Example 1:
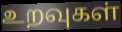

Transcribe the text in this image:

உறவுகள்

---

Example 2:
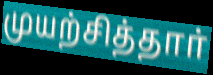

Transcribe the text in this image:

முயற்சித்தார்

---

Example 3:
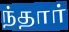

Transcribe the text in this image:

ந்தார்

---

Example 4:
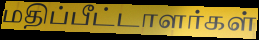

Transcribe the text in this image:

மதிப்பீட்டாளர்கள்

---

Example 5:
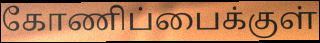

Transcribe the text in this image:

கோணிப்பைக்குள்